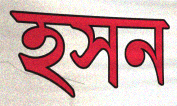
হসন